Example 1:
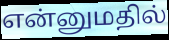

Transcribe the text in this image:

என்னுமதில்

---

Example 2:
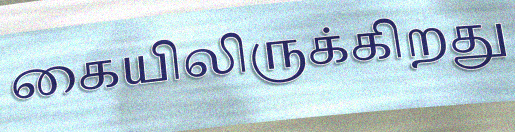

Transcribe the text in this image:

கையிலிருக்கிறது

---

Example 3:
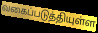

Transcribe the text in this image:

வகைப்படுத்தியுள்ள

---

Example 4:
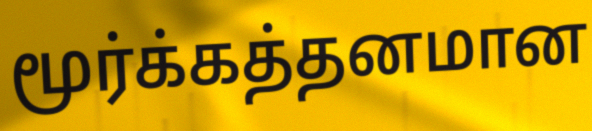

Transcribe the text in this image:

மூர்க்கத்தனமான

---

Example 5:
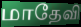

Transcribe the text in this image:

மாதேவி